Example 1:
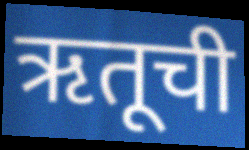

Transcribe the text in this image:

ॠतूची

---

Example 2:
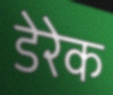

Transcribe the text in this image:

डेरेक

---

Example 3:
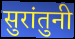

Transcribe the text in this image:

सुरांतुनी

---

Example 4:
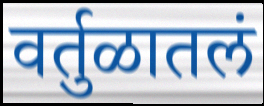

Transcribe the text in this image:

वर्तुळातलं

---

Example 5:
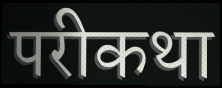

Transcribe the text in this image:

परीकथा